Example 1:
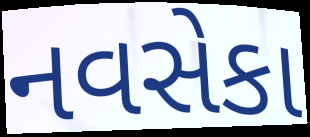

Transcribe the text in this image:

નવસેકા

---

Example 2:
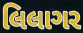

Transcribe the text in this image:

લિલાગર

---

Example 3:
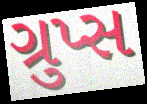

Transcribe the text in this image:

ગ્રુપ્સ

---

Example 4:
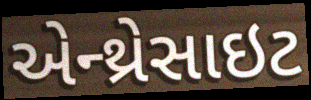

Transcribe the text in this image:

એન્થ્રેસાઇટ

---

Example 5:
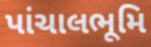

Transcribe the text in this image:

પાંચાલભૂમિ